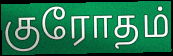
குரோதம்